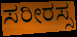
ಸರೀರಸ್ಸ